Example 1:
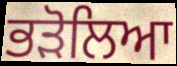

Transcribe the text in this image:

ਭੜੋਲਿਆ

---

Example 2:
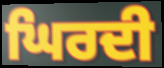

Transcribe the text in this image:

ਘਿਰਦੀ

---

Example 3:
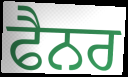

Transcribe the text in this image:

ਫੈਨਰ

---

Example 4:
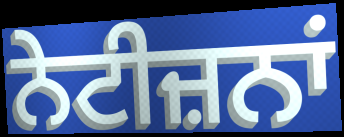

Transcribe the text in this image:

ਨੇਟੀਜ਼ਨਾਂ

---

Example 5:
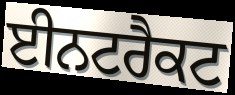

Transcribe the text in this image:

ਈਨਟਰੈਕਟ